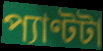
প্যাণ্টটা